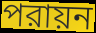
পরায়ন